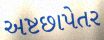
અષ્ટછાપેતર